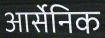
आर्सेनिक